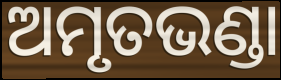
ଅମୃତଭଣ୍ଡା